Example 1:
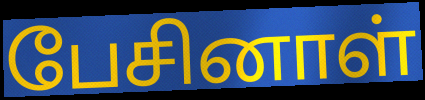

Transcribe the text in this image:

பேசினாள்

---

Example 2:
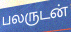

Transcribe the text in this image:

பலருடன்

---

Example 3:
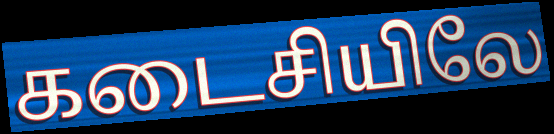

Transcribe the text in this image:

கடைசியிலே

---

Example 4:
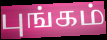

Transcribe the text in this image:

புங்கம்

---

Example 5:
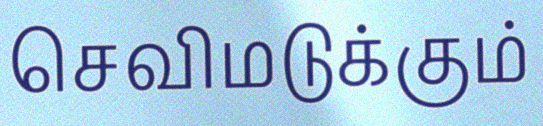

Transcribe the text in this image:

செவிமடுக்கும்